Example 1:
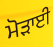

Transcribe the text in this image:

ਮੋੜਾਈ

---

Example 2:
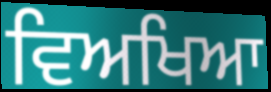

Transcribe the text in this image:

ਵਿਅਖਿਆ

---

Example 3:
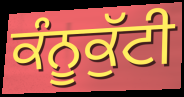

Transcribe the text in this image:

ਕੰਨੂਕੁੱਟੀ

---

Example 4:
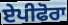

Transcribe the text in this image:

ਏਪੀਫੋਰਾ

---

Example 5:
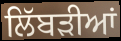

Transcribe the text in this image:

ਲਿੱਬੜੀਆਂ